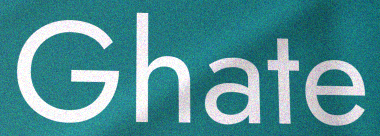
Ghate